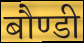
बौण्डी